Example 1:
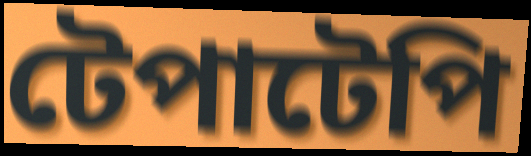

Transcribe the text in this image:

টেপাটেপি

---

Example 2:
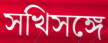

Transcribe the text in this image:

সখিসঙ্গে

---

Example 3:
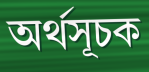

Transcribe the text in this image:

অর্থসূচক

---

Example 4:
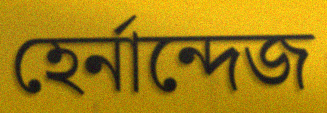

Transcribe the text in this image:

হের্নান্দেজ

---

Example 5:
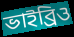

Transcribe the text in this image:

ভাইব্রিও